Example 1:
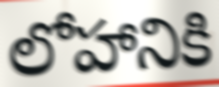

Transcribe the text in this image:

లోహానికి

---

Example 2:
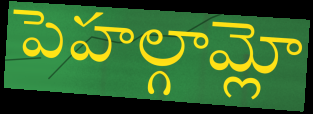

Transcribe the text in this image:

పెహల్గామ్లో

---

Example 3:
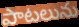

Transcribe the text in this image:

పాటలును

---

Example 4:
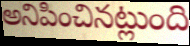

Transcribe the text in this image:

అనిపించినట్లుంది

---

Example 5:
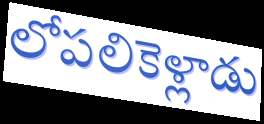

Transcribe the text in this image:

లోపలికెళ్లాడు